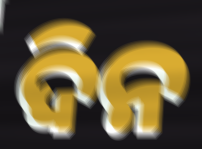
ଦିନ